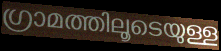
ഗ്രാമത്തിലൂടെയുള്ള